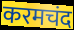
करमचंद